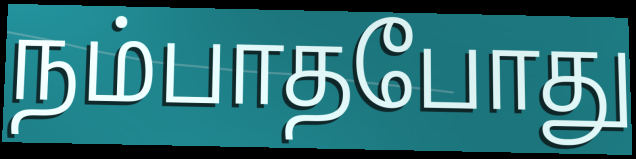
நம்பாதபோது